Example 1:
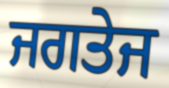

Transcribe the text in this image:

ਜਗਤੇਜ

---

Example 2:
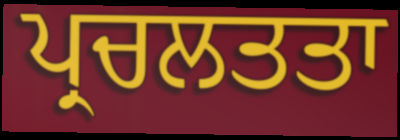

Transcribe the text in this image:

ਪ੍ਰਚਲਤਤਾ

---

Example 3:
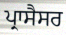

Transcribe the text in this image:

ਪ੍ਰਾਸੈਸਰ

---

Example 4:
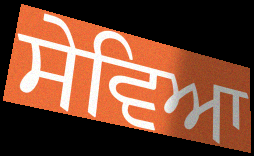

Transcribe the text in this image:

ਸੇਵਿਆ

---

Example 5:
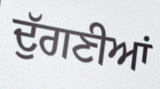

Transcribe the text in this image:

ਦੁੱਗਣੀਆਂ